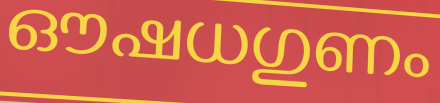
ഔഷധഗുണം